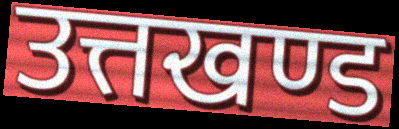
उत्तखण्ड